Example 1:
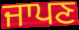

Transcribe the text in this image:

ਜਾਪਣ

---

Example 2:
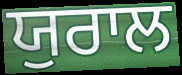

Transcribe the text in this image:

ਯੁਰਾਲ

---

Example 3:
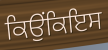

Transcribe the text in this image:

ਕਿਉਂਕਿਇਸ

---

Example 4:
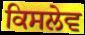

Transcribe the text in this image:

ਕਿਸਲੇਵ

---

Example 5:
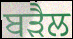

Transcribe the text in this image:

ਬੜੈਲ